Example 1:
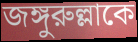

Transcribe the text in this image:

জঙ্গুরুল্লাকে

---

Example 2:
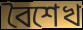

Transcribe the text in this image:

বৈশেখ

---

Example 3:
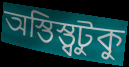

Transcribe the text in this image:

অস্তিস্ত্বটুকু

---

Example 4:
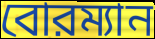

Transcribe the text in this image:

বোরম্যান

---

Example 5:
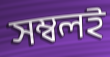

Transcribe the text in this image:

সম্বলই